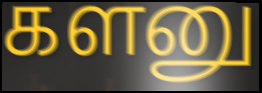
களனு